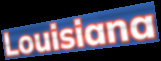
Louisiana